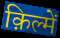
क़िल्में